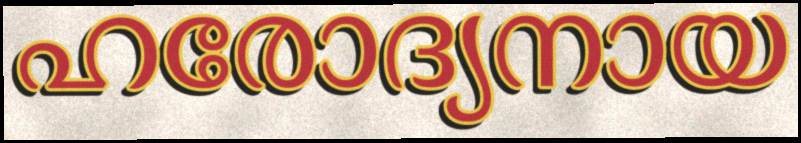
ഹരോദ്യനായ